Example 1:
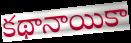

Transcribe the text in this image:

కథానాయికా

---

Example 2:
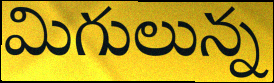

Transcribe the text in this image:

మిగులున్న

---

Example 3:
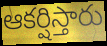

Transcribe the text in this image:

ఆకర్షిస్తారు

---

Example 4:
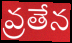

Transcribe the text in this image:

వ్రతేన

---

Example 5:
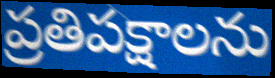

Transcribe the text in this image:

ప్రతిపక్షాలను